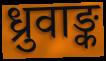
ध्रुवाङ्क